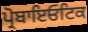
ਪ੍ਰੋਬਾਇਓਟਿਕ